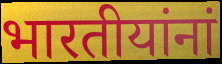
भारतीयांनां